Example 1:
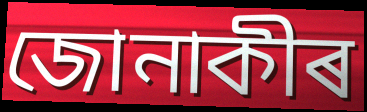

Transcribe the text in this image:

জোনাকীৰ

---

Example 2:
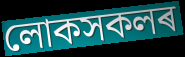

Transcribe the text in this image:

লোকসকলৰ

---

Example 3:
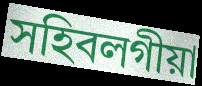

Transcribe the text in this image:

সহিবলগীয়া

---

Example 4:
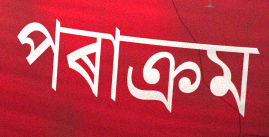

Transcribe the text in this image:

পৰাক্ৰম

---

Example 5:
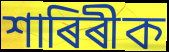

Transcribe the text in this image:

শাৰিৰীক